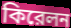
কিরেলন